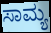
ಸಾಮ್ಯ